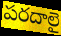
పరదాలై